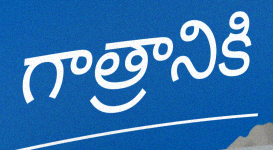
గాత్రానికి